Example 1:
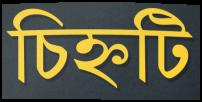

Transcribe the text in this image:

চিহ্নটি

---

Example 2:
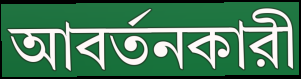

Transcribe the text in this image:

আবর্তনকারী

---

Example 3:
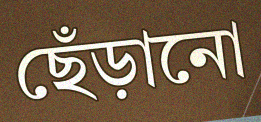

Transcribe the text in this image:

ছেঁড়ানো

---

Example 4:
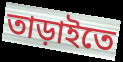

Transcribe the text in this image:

তাড়াইতে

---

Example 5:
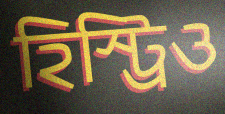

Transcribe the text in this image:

হিস্ট্রিও